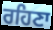
ਰਹਿਣਾ